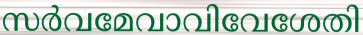
സർവമേവാവിവേശേതി